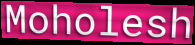
Moholesh